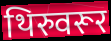
थिरुवरूर